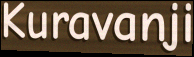
Kuravanji